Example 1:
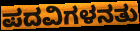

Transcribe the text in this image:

ಪದವಿಗಳನತು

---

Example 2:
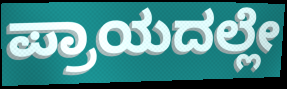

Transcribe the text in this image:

ಪ್ರಾಯದಲ್ಲೇ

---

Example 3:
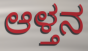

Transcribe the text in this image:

ಆಳ್ತನ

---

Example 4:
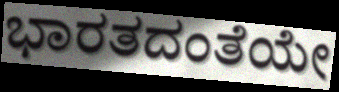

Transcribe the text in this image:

ಭಾರತದಂತೆಯೇ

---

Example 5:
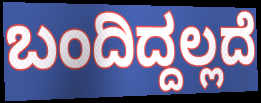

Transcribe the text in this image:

ಬಂದಿದ್ದಲ್ಲದೆ